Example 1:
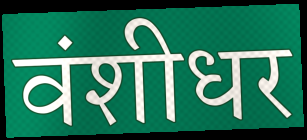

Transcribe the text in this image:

वंशीधर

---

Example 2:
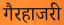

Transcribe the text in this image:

गैरहाजरी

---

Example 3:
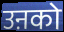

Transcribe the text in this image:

उऩको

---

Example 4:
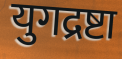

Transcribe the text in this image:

युगद्रष्टा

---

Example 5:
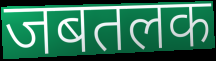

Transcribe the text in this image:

जबतलक